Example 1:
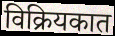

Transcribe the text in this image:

विक्रियकात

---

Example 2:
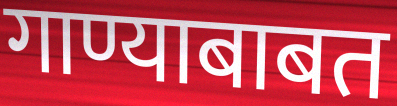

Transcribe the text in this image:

गाण्याबाबत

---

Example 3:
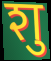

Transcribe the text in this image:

शु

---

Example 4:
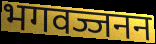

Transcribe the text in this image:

भगवज्जनन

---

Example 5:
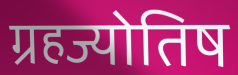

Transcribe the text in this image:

ग्रहज्योतिष